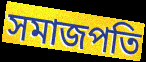
সমাজপতি